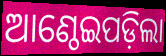
ଆଣ୍ଠେଇପଡ଼ିଲା